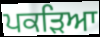
ਪਕੜਿਆ